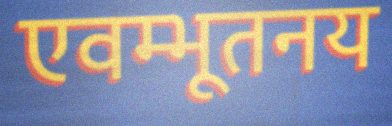
एवम्भूतनय